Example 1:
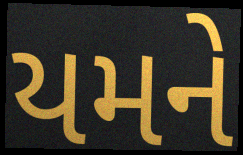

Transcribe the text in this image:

યમને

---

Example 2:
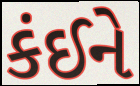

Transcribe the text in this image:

કંઈને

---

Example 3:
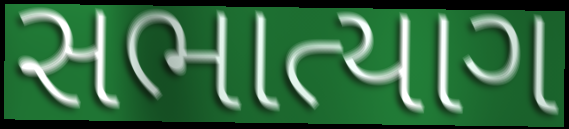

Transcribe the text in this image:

સભાત્યાગ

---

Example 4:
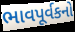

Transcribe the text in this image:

ભાવપૂર્વકનો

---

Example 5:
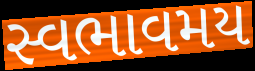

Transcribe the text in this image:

સ્વભાવમય